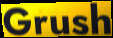
Grush